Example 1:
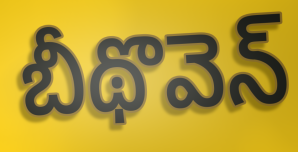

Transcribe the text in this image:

బీథొవెన్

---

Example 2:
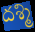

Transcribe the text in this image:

దశ్మి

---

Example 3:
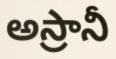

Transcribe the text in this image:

అస్రానీ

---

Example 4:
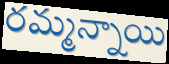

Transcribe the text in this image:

రమ్మన్నాయి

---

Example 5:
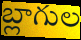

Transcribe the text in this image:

బ్లాగుల